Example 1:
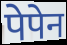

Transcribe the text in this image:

पेपेन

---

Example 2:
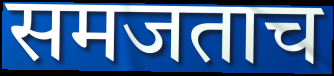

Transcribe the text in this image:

समजताच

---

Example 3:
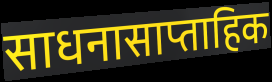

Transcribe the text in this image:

साधनासाप्ताहिक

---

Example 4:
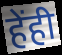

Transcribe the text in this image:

हेंही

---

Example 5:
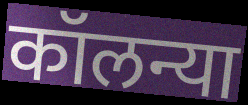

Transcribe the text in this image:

कॉलन्या